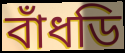
বাঁধডি